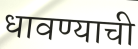
धावण्याची